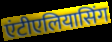
एंटीएलियासिंग